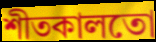
শীতকালতো